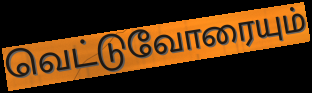
வெட்டுவோரையும்